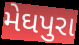
મેઘપુરા